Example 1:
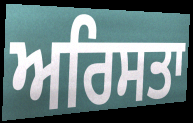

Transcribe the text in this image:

ਅਰਿਸਤਾ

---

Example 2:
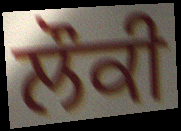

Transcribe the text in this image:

ਲੌਕੀ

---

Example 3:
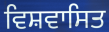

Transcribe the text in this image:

ਵਿਸ਼ਵਾਸਿਤ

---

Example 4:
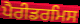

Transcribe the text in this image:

ਪੈਰੀਡਰਮਿਸ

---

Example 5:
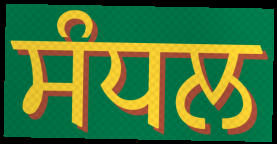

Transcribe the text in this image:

ਸੰਧਲ